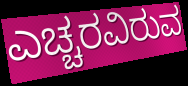
ಎಚ್ಚರವಿರುವ